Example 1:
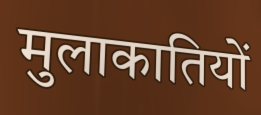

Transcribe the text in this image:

मुलाकातियों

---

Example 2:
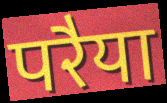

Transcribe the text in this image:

परैया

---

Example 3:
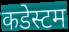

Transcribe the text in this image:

कडेस्टम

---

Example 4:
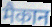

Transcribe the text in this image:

मैकान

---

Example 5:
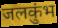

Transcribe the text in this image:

जलकुंभ